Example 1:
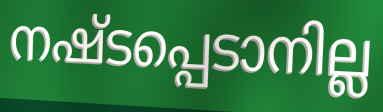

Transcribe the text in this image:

നഷ്ടപ്പെടാനില്ല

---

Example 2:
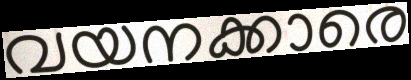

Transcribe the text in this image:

വയനക്കാരെ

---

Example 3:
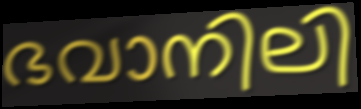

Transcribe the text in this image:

ഭവാനിലി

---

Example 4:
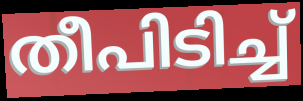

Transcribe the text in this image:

തീപിടിച്ച്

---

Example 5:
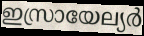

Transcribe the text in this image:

ഇസ്രായേല്യർ